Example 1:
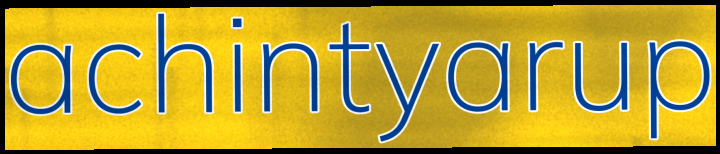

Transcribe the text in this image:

achintyarup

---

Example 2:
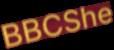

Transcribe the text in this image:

BBCShe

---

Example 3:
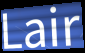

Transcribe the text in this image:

Lair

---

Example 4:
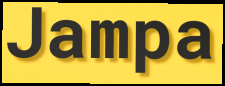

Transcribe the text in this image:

Jampa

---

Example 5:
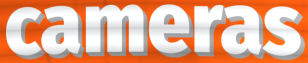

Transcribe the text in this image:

cameras